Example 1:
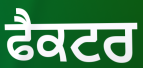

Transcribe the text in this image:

ਫੈਕਟਰ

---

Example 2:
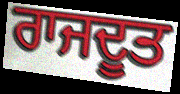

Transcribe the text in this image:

ਰਾਜਦੂਤ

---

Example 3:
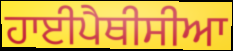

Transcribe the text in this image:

ਹਾਈਪੈਥੀਸੀਆ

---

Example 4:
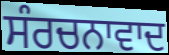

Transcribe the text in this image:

ਸੰਰਚਨਾਵਾਦ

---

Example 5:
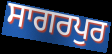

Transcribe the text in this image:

ਸਾਗਰਪੁਰ